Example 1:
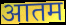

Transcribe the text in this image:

आतम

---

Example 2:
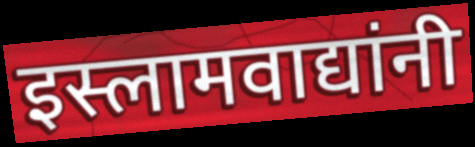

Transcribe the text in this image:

इस्लामवाद्यांनी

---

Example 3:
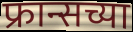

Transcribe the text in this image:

फ्रान्सच्या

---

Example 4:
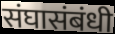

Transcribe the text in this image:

संघासंबंधी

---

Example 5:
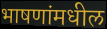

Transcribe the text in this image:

भाषणांमधील